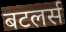
बटलर्स